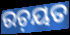
ରଚ଼ୟତ